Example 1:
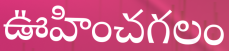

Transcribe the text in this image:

ఊహించగలం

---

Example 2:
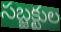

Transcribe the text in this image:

సబ్జక్టుల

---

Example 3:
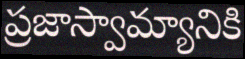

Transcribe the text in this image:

ప్రజాస్వామ్యానికి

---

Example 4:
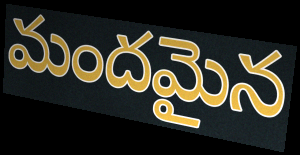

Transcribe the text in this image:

మందమైన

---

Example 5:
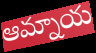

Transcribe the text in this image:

ఆమ్నాయ